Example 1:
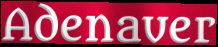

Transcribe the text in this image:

Adenauer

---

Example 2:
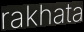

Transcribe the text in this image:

rakhata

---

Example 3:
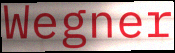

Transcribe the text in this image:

Wegner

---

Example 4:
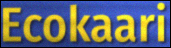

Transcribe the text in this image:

Ecokaari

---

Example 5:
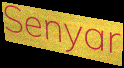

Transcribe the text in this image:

Senyar